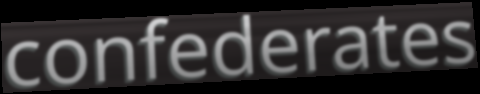
confederates